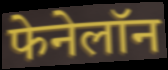
फेनेलॉन